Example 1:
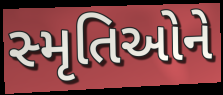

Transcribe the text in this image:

સ્મૃતિઓને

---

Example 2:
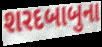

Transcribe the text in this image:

શરદબાબુના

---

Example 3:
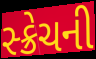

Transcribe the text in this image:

સ્ક્રેચની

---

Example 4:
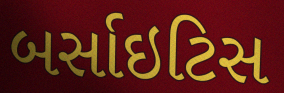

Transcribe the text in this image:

બર્સાઇટિસ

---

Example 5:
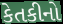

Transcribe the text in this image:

કેતકીનો